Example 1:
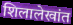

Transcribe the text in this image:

शिलालेखांत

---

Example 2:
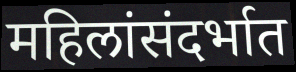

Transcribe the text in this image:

महिलांसंदर्भात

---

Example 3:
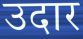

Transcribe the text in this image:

उदार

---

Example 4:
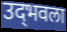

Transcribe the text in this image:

उद्‌भवला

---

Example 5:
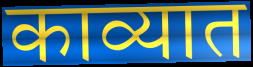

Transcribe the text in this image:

काव्यात